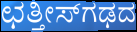
ಛತ್ತೀಸ್‌ಗಢದ